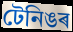
টেনিঙৰ